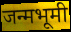
जन्मभूमी